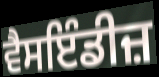
ਵੈਸਇੰਡੀਜ਼